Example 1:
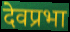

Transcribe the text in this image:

देवप्रभा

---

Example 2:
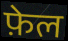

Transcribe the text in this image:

फ़ेल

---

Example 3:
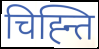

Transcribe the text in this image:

चिह्न्ति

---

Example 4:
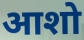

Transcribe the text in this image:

आशो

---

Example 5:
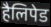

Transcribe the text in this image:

हैलिपेड